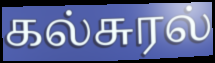
கல்சுரல்